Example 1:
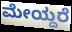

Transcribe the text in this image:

ಮೇಯ್ದರೆ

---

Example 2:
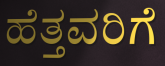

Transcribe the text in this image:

ಹೆತ್ತವರಿಗೆ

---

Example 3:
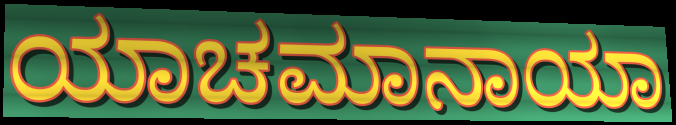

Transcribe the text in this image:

ಯಾಚಮಾನಾಯಾ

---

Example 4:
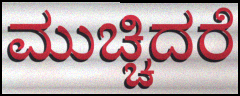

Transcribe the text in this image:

ಮುಚ್ಚಿದರೆ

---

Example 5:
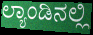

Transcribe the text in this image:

ಲ್ಯಾಂಡಿನಲ್ಲಿ